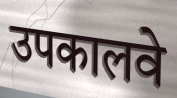
उपकालवे